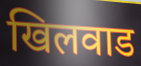
खिलवाड